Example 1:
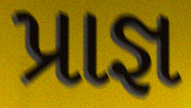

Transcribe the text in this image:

પ્રાજ્ઞ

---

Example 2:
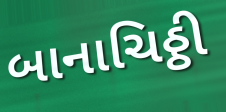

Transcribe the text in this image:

બાનાચિઠ્ઠી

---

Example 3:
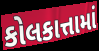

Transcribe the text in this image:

કોલકાત્તામાં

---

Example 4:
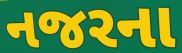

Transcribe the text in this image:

નજરના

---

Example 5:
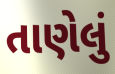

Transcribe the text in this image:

તાણેલું